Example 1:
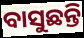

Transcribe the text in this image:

ବାସୁଛନ୍ତି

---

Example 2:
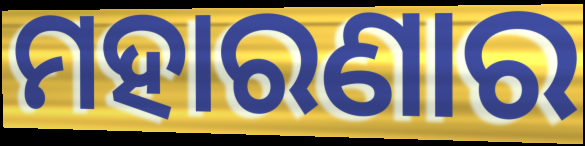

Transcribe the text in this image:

ମହାରଣାର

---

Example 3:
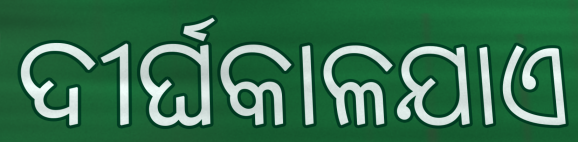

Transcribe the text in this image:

ଦୀର୍ଘକାଳଯାଏ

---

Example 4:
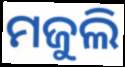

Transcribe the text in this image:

ମଜୁଲି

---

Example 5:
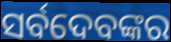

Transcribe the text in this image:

ସର୍ବଦେବଙ୍କର